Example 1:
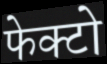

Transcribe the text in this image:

फेक्टो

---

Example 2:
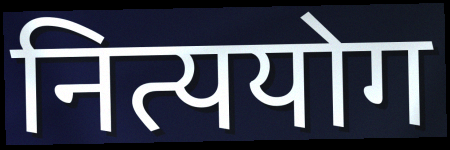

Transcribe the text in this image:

नित्ययोग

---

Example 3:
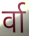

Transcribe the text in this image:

र्वा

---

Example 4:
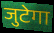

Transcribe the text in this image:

जुटेगा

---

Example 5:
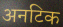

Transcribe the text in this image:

अनटिक